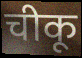
चीकू